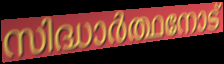
സിദ്ധാർത്ഥനോട്